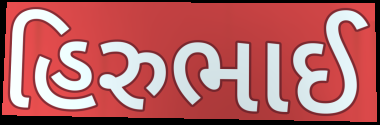
હિરુભાઈ